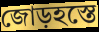
জোড়হস্তে